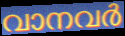
വാനവർ